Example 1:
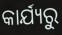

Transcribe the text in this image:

କାର୍ଯ୍ୟରୁ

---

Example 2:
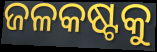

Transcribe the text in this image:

ଜଳକଷ୍ଟକୁ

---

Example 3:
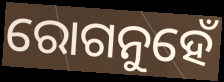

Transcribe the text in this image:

ରୋଗନୁହେଁ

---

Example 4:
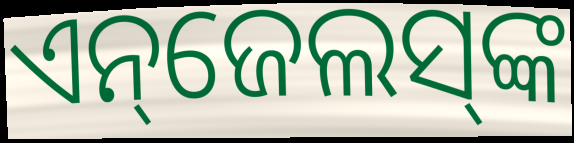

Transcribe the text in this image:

ଏନ୍‌ଜେଲସ୍‌ଙ୍କ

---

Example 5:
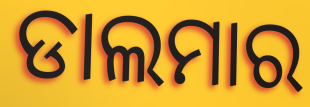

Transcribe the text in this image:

ଡାଲମାର